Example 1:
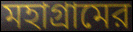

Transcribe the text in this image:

মহাগ্রামের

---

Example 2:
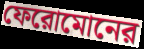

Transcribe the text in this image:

ফেরোমোনের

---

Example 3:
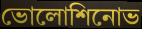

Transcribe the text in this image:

ভোলোশিনোভ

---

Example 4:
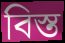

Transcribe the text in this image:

বিস্ত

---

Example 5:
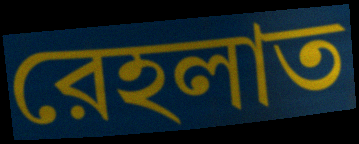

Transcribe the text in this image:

রেহলাত